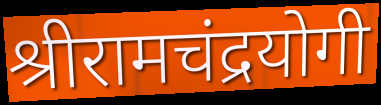
श्रीरामचंद्रयोगी